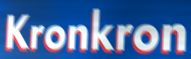
Kronkron